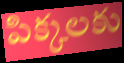
పిక్కలకు